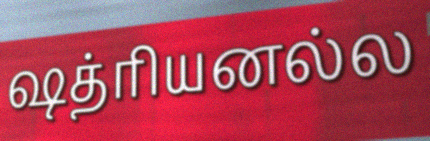
ஷத்ரியனல்ல